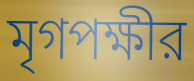
মৃগপক্ষীর